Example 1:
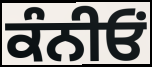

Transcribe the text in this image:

ਕੰਨੀਓਂ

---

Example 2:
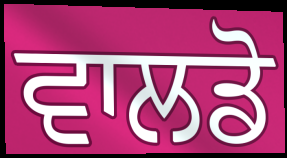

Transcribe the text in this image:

ਵਾਲਡੋ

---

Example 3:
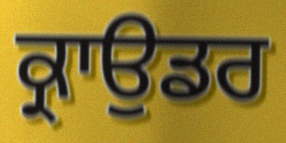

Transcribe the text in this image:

ਕ੍ਰਾਉਡਰ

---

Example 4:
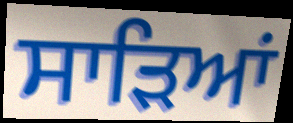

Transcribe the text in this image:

ਸਾੜਿਆਂ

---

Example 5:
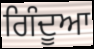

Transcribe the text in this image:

ਗਿੰਦੂਆ